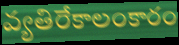
వ్యతిరేకాలంకారం